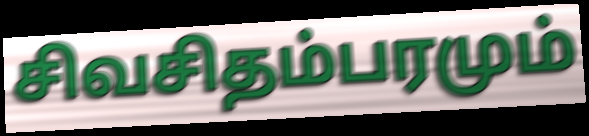
சிவசிதம்பரமும்